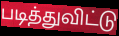
படித்துவிட்டு